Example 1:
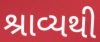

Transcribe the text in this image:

શ્રાવ્યથી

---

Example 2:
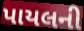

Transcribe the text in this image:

પાયલની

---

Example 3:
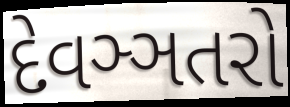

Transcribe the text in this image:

દેવઞ્ઞતરો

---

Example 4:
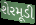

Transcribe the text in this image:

શેરમૂડી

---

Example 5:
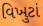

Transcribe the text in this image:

વિખુટાં